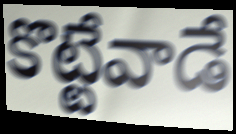
కొట్టేవాడే